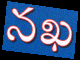
నఖ